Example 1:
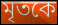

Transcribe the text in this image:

মৃতকে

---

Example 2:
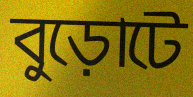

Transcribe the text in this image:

বুড়োটে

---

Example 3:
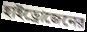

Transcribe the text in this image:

হাইড্রোজেনের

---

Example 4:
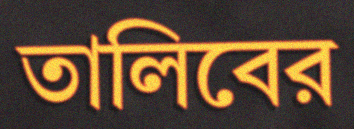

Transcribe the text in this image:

তালিবের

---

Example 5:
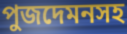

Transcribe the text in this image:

পুজদেমনসহ